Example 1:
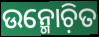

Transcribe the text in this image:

ଉନ୍ମୋଚ଼ିତ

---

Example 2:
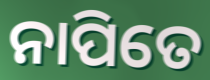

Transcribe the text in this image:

ନାପିତେ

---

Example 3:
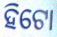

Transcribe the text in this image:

ହିଟୋ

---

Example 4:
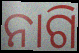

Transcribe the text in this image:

ନାଗି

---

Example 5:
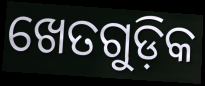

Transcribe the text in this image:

ଖେତଗୁଡ଼ିକ